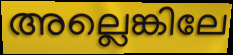
അല്ലെങ്കിലേ